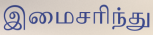
இமைசரிந்து